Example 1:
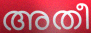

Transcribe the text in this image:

അതീ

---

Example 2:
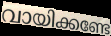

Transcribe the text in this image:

വായിക്കണ്ടേ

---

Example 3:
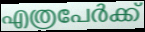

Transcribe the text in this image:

എത്രപേർക്ക്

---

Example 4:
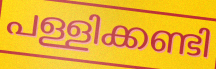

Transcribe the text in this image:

പള്ളിക്കണ്ടി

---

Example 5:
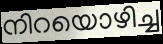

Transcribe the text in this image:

നിറയൊഴിച്ച